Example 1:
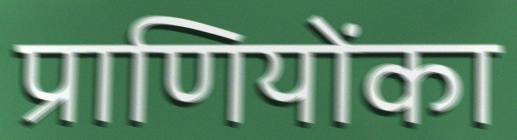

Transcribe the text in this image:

प्राणियोंका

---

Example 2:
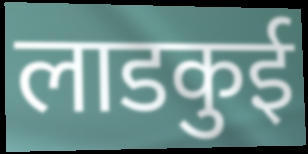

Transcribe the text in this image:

लाडकुई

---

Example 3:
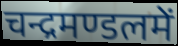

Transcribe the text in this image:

चन्द्रमण्डलमें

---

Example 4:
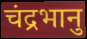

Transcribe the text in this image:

चंद्रभानु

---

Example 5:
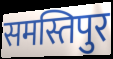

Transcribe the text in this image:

समस्तिपुर